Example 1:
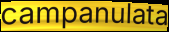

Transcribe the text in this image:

campanulata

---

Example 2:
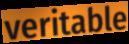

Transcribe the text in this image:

veritable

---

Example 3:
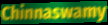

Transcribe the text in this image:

Chinnaswamy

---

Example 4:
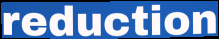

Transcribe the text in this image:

reduction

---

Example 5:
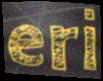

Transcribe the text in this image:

eri